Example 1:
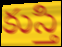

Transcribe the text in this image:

కుస్తి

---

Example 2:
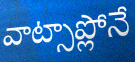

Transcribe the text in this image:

వాట్సాప్లోనే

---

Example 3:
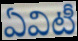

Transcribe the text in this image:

ఏవిటీ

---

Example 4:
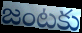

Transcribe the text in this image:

జంటకు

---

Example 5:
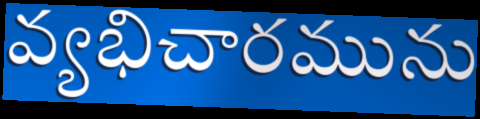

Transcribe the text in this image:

వ్యభిచారమును